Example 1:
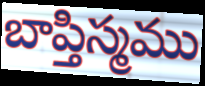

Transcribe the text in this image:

బాప్తిస్మము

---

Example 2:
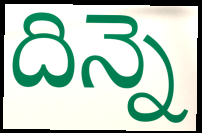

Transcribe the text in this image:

దిన్నె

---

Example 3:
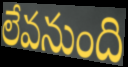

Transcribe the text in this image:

లేవనుంది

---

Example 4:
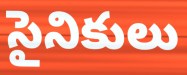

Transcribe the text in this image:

సైనికులు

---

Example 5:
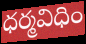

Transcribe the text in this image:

ధర్మవిధిం